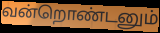
வன்றொண்டனும்